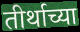
तीर्थाच्या